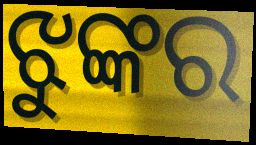
ଝୁଙ୍କର